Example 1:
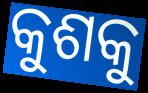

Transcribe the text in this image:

କୁଶକୁ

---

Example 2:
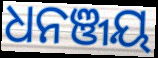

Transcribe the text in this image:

ଧନଞ୍ଜୟ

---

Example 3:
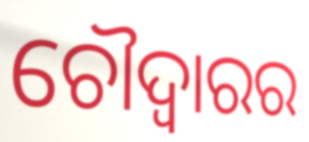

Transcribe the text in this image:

ଚୌଦ୍ୱାରର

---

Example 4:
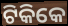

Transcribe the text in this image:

ଟିକିକେ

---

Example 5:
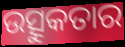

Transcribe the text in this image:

ଉତ୍ସୁକତାର